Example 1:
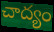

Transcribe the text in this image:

చాద్యం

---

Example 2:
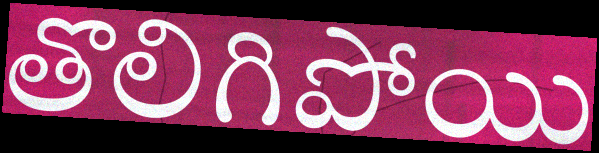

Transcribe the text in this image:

తొలిగిపోయి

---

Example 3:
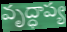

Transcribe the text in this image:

వృద్ధాప్య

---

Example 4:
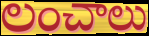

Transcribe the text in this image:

లంచాలు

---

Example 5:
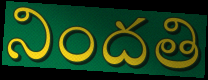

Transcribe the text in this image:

నిందతి